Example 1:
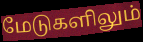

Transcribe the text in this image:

மேடுகளிலும்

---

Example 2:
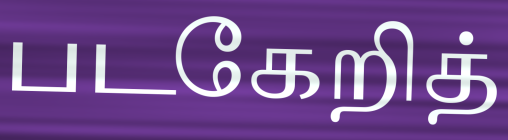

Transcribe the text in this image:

படகேறித்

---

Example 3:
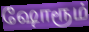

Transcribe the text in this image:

ஷோரூம்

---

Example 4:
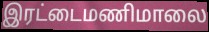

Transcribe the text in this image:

இரட்டைமணிமாலை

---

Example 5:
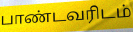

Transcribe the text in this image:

பாண்டவரிடம்